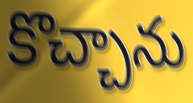
కొచ్చాను